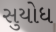
સુયોધ